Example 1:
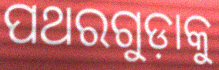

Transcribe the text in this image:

ପଥରଗୁଡ଼ାକୁ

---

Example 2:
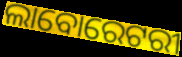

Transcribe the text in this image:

ଲାବୋରେଟରୀ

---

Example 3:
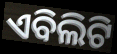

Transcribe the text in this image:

ଏବିଲିଟି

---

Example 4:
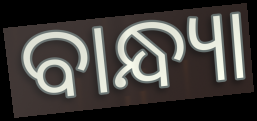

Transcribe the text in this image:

ବାନ୍ଧ୍ୟା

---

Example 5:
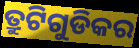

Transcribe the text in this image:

ତ୍ରୁଟିଗୁଡିକର